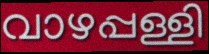
വാഴപ്പള്ളി